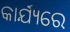
କାର୍ଯ୍ୟରେ